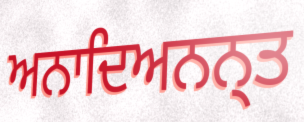
ਅਨਾਦਿਅਨਨ੍ਤ